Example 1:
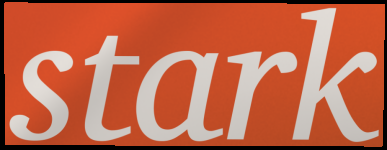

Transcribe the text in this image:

stark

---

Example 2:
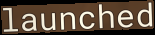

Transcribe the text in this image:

launched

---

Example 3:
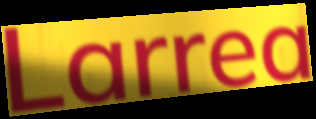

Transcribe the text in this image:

Larrea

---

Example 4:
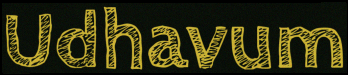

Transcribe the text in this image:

Udhavum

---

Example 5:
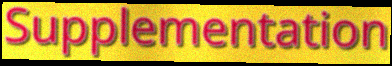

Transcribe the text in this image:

Supplementation